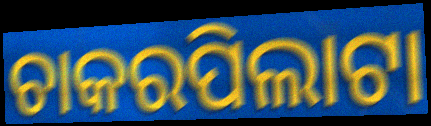
ଚାକରପିଲାଟା